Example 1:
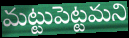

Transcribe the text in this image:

మట్టుపెట్టమని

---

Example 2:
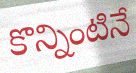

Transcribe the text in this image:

కొన్నింటినే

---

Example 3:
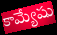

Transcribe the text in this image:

కామ్యేషు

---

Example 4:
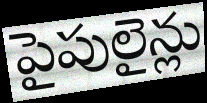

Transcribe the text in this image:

పైపులైన్లు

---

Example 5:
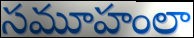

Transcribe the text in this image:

సమూహంలా